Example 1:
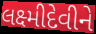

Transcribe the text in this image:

લક્ષ્મીદેવીને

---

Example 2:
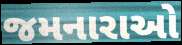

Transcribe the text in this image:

જમનારાઓ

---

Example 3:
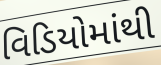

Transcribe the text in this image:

વિડિયોમાંથી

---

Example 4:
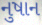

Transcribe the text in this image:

નુષાન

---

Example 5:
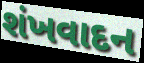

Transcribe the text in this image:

શંખવાદન